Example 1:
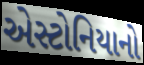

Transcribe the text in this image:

એસ્ટોનિયાનો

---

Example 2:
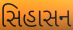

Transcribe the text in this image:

સિહાસન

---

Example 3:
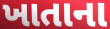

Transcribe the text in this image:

ખાતાના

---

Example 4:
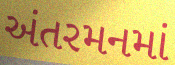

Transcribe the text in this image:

અંતરમનમાં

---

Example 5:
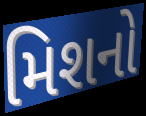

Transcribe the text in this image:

મિશનો